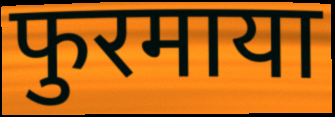
फुरमाया